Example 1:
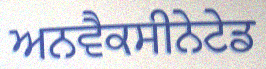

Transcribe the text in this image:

ਅਨਵੈਕਸੀਨੇਟੇਡ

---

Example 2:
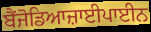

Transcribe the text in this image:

ਬੈਂਜੋਡਿਆਜ਼ਾਈਪਾਈਨ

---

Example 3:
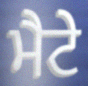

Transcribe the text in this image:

ਮੈਟੇ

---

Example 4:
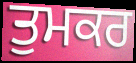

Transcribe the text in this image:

ਤੁਮਕਰ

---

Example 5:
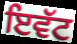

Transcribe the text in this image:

ਇਵੱਟ